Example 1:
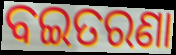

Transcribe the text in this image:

ବଇତରଣା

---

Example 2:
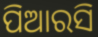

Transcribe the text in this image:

ପିଆରସି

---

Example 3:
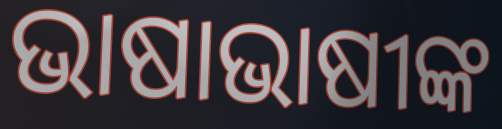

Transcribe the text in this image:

ଭାଷାଭାଷୀଙ୍କ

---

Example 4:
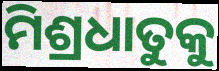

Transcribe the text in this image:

ମିଶ୍ରଧାତୁକୁ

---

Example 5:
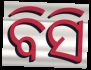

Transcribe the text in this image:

ବିସି